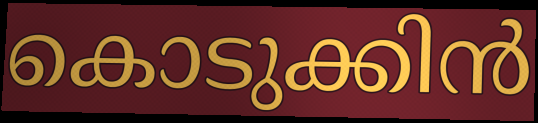
കൊടുക്കിൻ